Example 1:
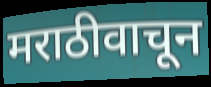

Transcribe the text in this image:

मराठीवाचून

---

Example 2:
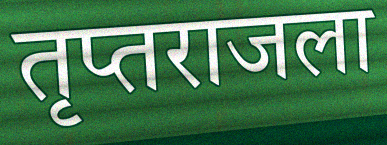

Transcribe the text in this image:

तृप्तराजला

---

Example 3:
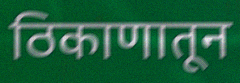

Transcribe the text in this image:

ठिकाणातून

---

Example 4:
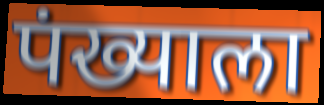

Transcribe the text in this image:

पंख्याला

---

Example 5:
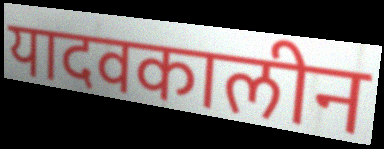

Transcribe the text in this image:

यादवकालीन